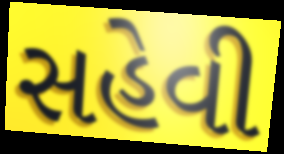
સહેવી